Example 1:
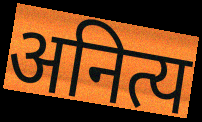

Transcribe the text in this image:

अनित्य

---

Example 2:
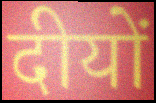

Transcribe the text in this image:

दीयों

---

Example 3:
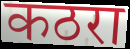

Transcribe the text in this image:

कठरा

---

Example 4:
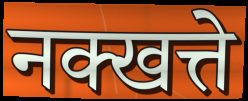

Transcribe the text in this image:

नक्खत्ते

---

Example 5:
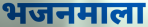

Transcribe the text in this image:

भजनमाला